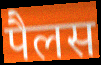
पैलस